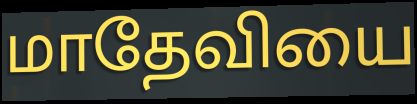
மாதேவியை